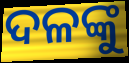
ଦଳଙ୍କୁ